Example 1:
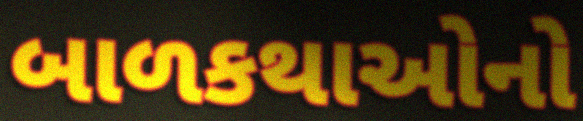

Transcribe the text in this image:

બાળકથાઓનો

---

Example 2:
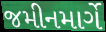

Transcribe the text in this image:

જમીનમાર્ગે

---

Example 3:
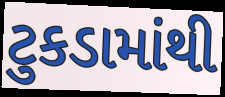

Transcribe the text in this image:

ટુકડામાંથી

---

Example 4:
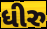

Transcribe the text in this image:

ધીરુ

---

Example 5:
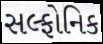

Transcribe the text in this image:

સલ્ફોનિક